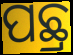
ପଛ୍ର